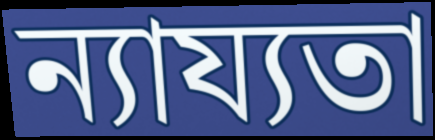
ন্যায্যতা